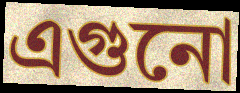
এগুনো